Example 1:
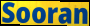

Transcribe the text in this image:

Sooran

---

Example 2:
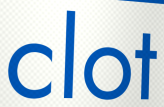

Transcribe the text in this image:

clot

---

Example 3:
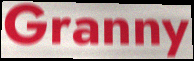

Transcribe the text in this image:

Granny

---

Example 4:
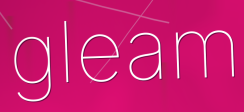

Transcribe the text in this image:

gleam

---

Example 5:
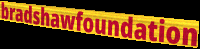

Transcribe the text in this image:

bradshawfoundation